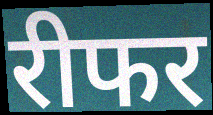
रीफर